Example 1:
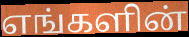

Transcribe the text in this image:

எங்களின்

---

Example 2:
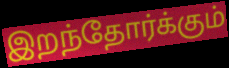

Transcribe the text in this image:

இறந்தோர்க்கும்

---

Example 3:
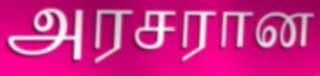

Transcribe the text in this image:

அரசரான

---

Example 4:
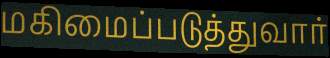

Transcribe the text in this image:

மகிமைப்படுத்துவார்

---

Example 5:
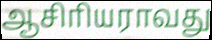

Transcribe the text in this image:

ஆசிரியராவது